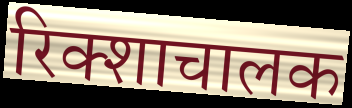
रिक्शाचालक